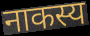
नाकस्य